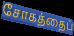
சோகத்தைப்